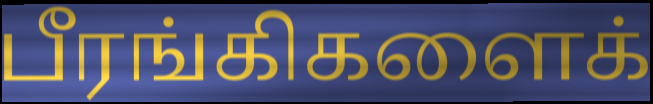
பீரங்கிகளைக்